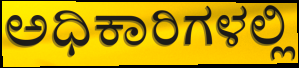
ಅಧಿಕಾರಿಗಳಲ್ಲಿ